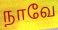
நாவே